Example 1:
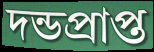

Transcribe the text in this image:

দন্ডপ্রাপ্ত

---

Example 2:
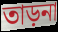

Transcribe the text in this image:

তাড়না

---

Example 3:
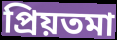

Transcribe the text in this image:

প্রিয়তমা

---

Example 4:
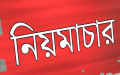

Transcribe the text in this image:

নিয়মাচার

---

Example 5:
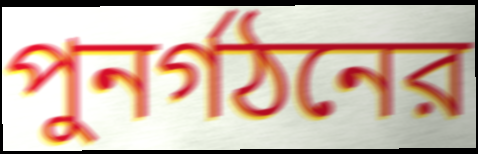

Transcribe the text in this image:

পুনর্গঠনের